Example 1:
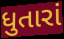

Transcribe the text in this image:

ધુતારાં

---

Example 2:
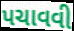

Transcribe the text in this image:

પચાવવી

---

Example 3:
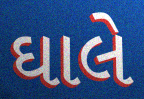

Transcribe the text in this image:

ઘાલે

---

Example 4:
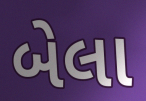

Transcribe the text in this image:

બેલા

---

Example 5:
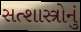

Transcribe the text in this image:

સત્શાસ્ત્રોનું